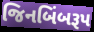
જિનબિંબરૂપ